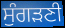
ਸੁੰਗੜਣੀ